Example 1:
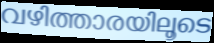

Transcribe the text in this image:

വഴിത്താരയിലൂടെ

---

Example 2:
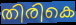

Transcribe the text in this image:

തിരികെ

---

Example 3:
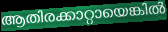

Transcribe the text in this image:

ആതിരക്കാറ്റായെങ്കിൽ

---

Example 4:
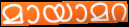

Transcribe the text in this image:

മായാമറ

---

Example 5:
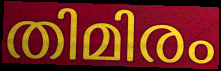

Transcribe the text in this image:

തിമിരം